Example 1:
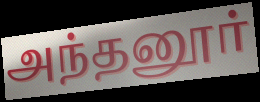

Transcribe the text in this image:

அந்தனூர்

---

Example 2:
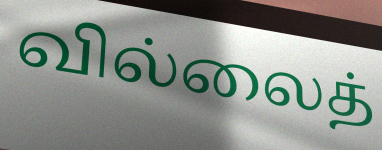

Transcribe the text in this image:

வில்லைத்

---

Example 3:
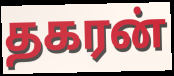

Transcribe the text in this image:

தகரன்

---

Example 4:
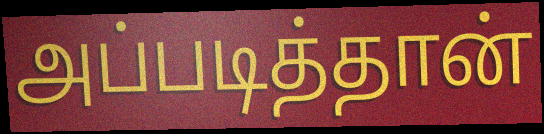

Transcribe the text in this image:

அப்படித்தான்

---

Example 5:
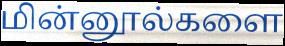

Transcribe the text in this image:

மின்னூல்களை